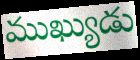
ముఖ్యుడు